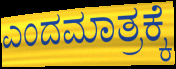
ಎಂದಮಾತ್ರಕ್ಕೆ